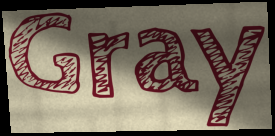
Gray